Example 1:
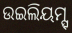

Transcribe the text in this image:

ଉଇଲିୟମ୍ସ୍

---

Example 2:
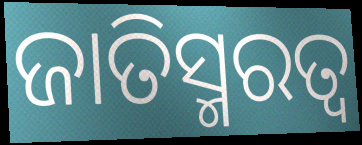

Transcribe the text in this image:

ଜାତିସ୍ମରତ୍ୱ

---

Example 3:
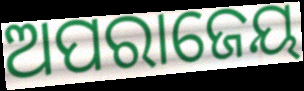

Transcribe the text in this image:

ଅପରାଜେୟ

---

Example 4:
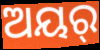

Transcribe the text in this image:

ଅୟର୍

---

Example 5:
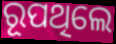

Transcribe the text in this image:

ରୂପଥିଲେ